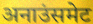
अनाउंसमेट